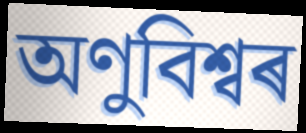
অণুবিশ্বৰ